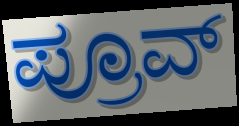
ಪ್ರೂವ್